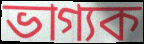
ভাগ্যক